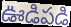
ఊడిపడి